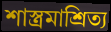
শাস্ত্রমাশ্রিত্য